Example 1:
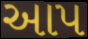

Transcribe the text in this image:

આપ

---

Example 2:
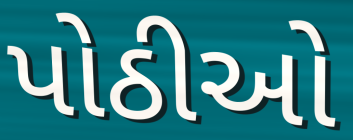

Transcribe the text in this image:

પોઠીઓ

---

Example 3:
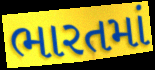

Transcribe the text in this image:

ભારતમાં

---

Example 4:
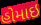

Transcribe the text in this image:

હોમાઇ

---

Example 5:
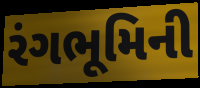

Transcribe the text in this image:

રંગભૂમિની